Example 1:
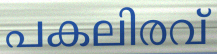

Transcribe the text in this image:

പകലിരവ്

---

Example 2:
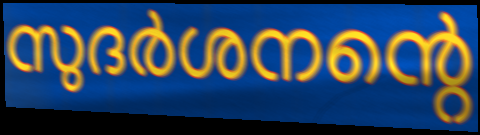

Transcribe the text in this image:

സുദർശനന്റെ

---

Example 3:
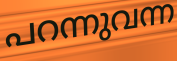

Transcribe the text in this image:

പറന്നുവന്ന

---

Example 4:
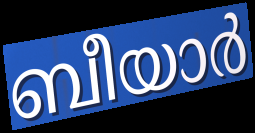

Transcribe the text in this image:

ബീയാർ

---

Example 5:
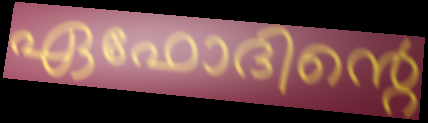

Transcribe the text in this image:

ഏഫോദിന്റെ